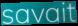
savait